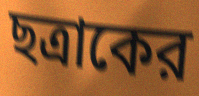
ছত্রাকের